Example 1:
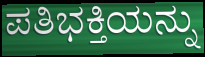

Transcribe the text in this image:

ಪತಿಭಕ್ತಿಯನ್ನು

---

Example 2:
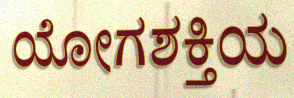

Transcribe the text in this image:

ಯೋಗಶಕ್ತಿಯ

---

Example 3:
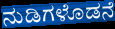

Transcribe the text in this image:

ನುಡಿಗಳೊಡನೆ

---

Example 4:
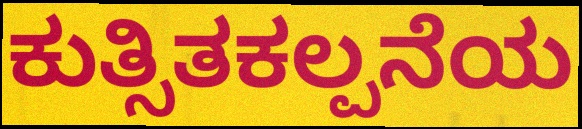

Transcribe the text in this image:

ಕುತ್ಸಿತಕಲ್ಪನೆಯ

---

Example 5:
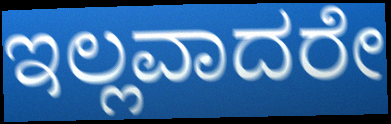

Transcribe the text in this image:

ಇಲ್ಲವಾದರೇ